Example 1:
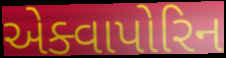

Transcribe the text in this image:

એક્વાપોરિન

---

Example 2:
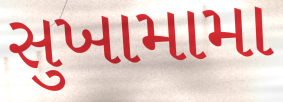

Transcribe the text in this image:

સુખામામા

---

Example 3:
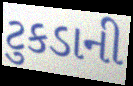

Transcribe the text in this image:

ટુકડાની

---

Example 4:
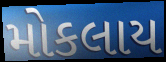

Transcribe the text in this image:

મોકલાય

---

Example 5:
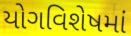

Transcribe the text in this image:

યોગવિશેષમાં